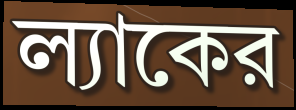
ল্যাকের